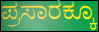
ಪ್ರಸಾರಕ್ಕೂ